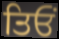
ਤਿਓਂ